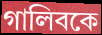
গালিবকে